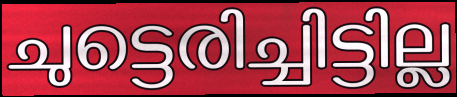
ചുട്ടെരിച്ചിട്ടില്ല